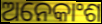
ଅନେକାଂଶ